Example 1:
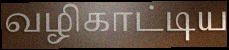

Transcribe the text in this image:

வழிகாட்டிய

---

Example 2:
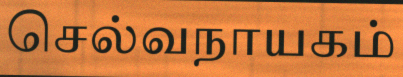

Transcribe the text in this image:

செல்வநாயகம்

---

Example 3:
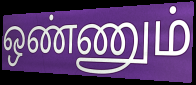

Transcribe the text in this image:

ஒண்ணும்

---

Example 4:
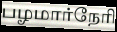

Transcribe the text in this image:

பழமார்நேரி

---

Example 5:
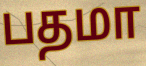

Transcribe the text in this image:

பதமா